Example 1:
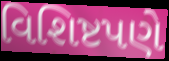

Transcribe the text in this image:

વિશિષ્ટપણે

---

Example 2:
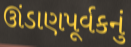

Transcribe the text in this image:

ઊંડાણપૂર્વકનું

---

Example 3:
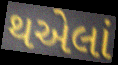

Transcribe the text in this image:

થએલાં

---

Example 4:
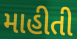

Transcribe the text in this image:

માહીતી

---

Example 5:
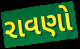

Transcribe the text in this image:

રાવણો